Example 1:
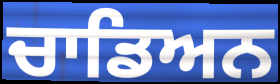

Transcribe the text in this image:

ਚਾਡਿਅਨ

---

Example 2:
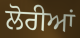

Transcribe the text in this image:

ਲੋਰੀਆਂ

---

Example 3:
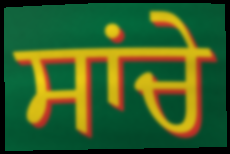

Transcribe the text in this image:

ਸਾਂਚੇ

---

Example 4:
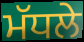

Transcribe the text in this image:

ਮੱਧਲੇ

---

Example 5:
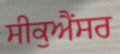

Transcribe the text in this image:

ਸੀਕੁਐਂਸਰ